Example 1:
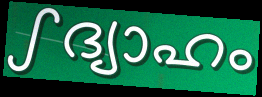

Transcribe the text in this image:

ഽദ്യാഹം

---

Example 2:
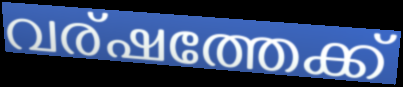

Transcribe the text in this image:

വര്ഷത്തേക്ക്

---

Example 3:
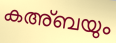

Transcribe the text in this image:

കഅ്ബയും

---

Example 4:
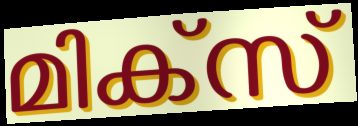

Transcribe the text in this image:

മിക്‌സ്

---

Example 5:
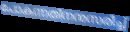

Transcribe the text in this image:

പോകുന്നതിനനുസരിച്ച്